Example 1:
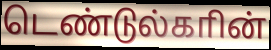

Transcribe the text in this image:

டெண்டுல்கரின்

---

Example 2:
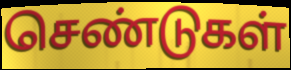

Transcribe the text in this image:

செண்டுகள்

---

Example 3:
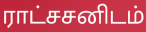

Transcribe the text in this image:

ராட்சசனிடம்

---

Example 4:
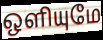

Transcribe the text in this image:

ஒளியுமே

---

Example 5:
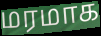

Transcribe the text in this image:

மரமாக